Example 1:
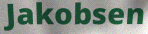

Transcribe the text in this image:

Jakobsen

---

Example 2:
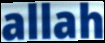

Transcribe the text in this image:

allah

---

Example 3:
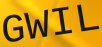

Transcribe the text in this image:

GWIL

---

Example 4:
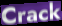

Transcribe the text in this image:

Crack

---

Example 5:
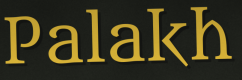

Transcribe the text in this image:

Palakh